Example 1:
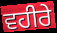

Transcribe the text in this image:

ਵਹੀਰੇ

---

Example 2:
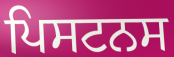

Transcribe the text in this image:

ਪਿਸਟਨਸ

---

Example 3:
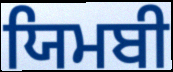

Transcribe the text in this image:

ਯਿਮਬੀ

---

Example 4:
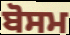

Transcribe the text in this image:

ਬੋਸਮ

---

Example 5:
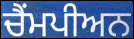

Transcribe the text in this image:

ਚੈਂਮਪੀਅਨ